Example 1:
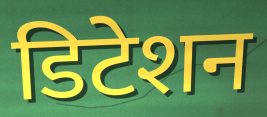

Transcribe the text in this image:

डिटेशन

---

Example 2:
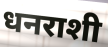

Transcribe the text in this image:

धनराशी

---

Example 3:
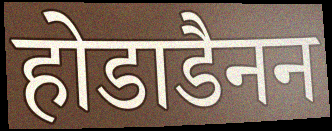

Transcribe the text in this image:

होडाडैनन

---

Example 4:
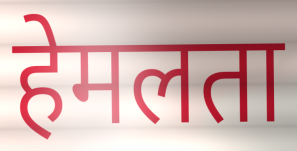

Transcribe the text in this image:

हेमलता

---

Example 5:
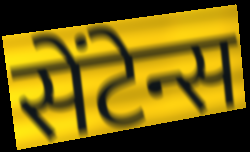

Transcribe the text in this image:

सेंटेन्स